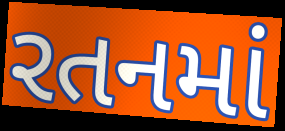
રતનમાં